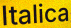
Italica